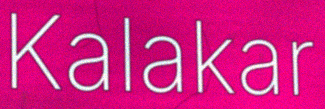
Kalakar